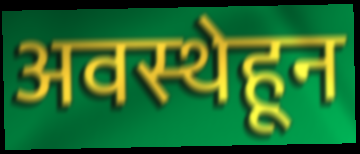
अवस्थेहून